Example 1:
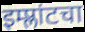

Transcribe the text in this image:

इम्प्लांटचा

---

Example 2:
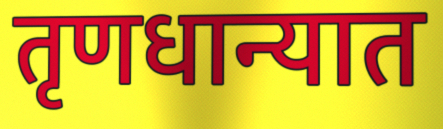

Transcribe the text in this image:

तृणधान्यात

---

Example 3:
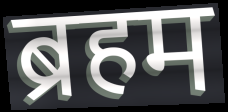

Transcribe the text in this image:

ब्रहम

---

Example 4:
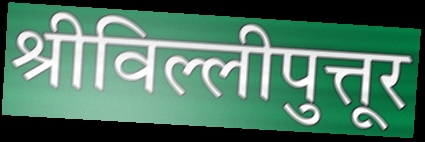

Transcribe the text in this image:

श्रीविल्लीपुत्तूर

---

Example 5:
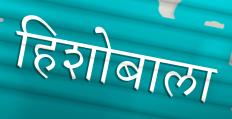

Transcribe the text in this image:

हिशोबाला